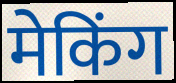
मेकिंग